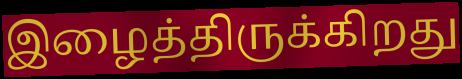
இழைத்திருக்கிறது